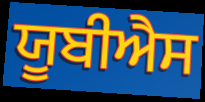
ਯੂਬੀਐਸ